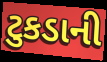
ટુકડાની